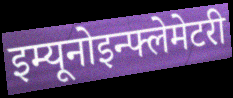
इम्यूनोइन्फ्लेमेटरी